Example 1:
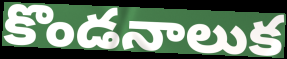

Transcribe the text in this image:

కొండనాలుక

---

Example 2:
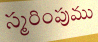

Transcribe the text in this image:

స్మరింపుము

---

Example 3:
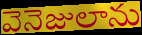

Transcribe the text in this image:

వెనెజులాను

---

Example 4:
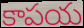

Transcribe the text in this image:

కాపయ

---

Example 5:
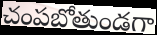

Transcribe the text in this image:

చంపబోతుండగా